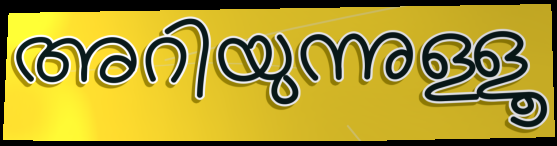
അറിയുന്നുള്ളൂ